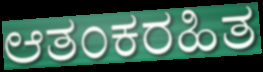
ಆತಂಕರಹಿತ